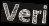
Veri